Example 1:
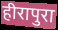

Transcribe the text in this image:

हीरापुरा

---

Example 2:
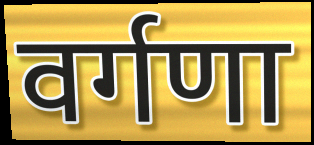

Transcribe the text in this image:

वर्गणा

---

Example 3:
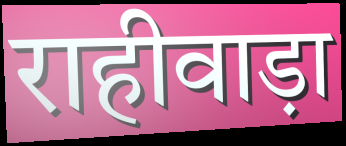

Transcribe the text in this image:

राहीवाड़ा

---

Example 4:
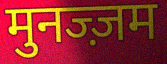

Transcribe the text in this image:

मुनज्ज़म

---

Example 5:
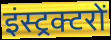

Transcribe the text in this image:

इंस्ट्रक्टरों